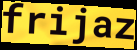
frijaz